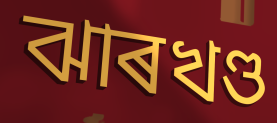
ঝাৰখণ্ড